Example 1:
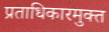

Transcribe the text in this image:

प्रताधिकारमुक्त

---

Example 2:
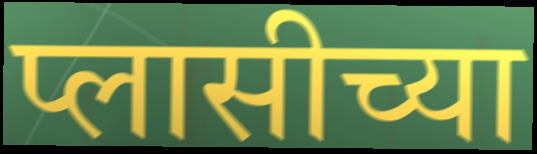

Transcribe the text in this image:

प्लासीच्या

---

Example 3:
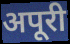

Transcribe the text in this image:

अपूरी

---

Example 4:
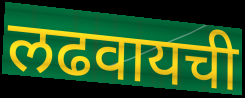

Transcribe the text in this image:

लढवायची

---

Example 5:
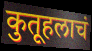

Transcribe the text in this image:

कुतूहलाचं